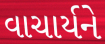
વાચાર્યને